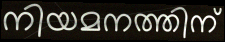
നിയമനത്തിന്